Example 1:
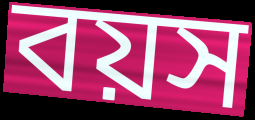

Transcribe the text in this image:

বয়স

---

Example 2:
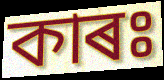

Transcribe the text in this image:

কাৰঃ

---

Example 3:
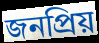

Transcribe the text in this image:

জনপ্ৰিয়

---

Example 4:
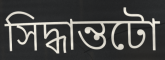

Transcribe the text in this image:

সিদ্ধান্তটো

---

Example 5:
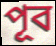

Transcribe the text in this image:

পূব